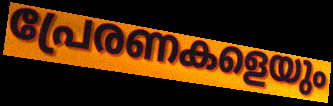
പ്രേരണകളെയും